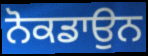
ਨੋਕਡਾਉਨ